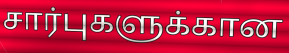
சார்புகளுக்கான